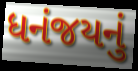
ધનંજયનું